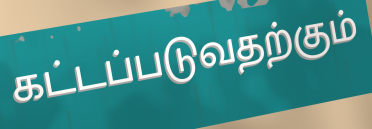
கட்டப்படுவதற்கும்